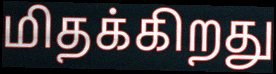
மிதக்கிறது